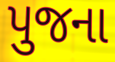
પુજના